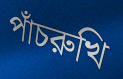
পাঁচরুখি